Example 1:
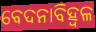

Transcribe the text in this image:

ବେଦନାବିହ୍ୱଳ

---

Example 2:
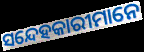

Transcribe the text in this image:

ସନ୍ଦେହକାରୀମାନେ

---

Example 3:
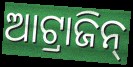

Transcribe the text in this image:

ଆଟ୍ରାଜିନ୍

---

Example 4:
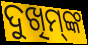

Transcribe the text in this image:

ଦୁଖିମ୍‌ଙ୍କ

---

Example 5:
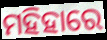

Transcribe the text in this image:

ମହିହାରେ